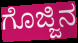
ಗೊಜ್ಜಿನ